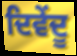
ਦਿਵੇਂਦੂ